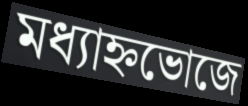
মধ্যাহ্নভোজে